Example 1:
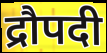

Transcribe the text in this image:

द्रौपदी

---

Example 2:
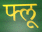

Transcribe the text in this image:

फ्लू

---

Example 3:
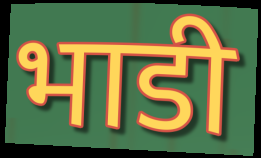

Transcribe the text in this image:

भाडी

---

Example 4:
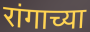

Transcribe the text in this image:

रांगाच्या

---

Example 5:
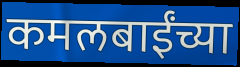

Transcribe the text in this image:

कमलबाईंच्या